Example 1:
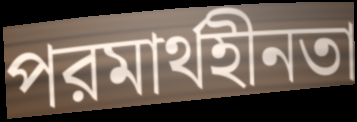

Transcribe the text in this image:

পরমার্থহীনতা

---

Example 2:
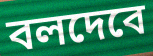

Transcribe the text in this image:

বলদেবে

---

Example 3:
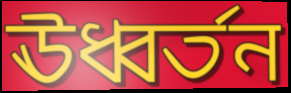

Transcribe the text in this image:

ঊধ্বর্তন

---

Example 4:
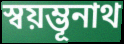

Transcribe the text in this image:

স্বয়ম্ভূনাথ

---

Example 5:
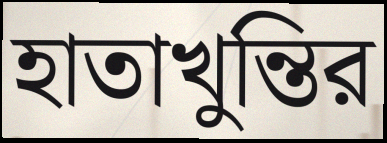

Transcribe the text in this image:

হাতাখুন্তির